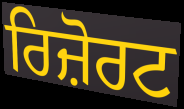
ਰਿਜ਼ੋਰਟ